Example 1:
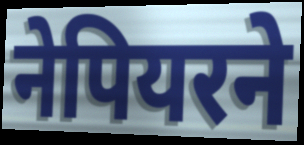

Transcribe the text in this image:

नेपियरने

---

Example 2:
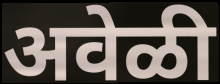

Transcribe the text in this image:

अवेळी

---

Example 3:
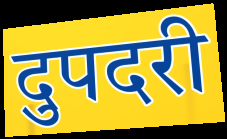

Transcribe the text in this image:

दुपदरी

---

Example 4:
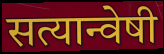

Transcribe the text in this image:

सत्यान्वेषी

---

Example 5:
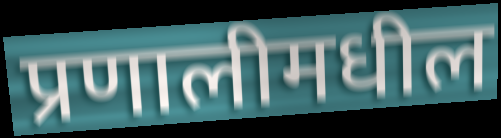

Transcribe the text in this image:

प्रणालीमधील